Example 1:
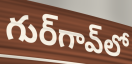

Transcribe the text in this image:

గుర్‌గావ్‌లో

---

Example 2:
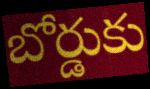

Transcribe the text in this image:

బోర్డుకు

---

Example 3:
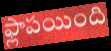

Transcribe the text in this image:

ఫ్లాపయింది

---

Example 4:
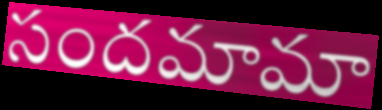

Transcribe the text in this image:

సందమామా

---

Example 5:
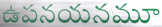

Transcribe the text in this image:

ఉపనయనమూ